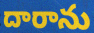
దారాను